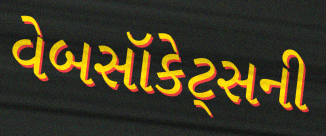
વેબસૉકેટ્સની